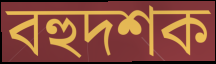
বহুদশক